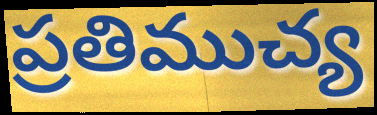
ప్రతిముచ్య